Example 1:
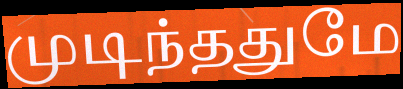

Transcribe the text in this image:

முடிந்ததுமே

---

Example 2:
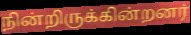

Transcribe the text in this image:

நின்றிருக்கின்றனர்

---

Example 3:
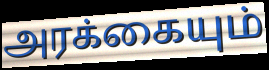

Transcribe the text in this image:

அரக்கையும்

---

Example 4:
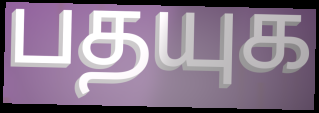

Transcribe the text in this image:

பதயுக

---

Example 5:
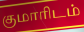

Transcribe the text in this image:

குமாரிடம்